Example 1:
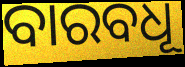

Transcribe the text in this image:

ବାରବଧୂ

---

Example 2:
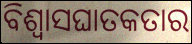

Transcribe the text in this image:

ବିଶ୍ୱାସଘାତକତାର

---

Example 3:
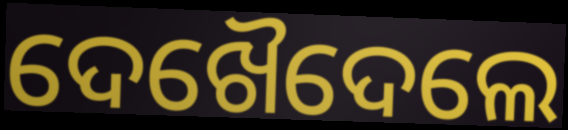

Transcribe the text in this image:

ଦେଖୈଦେଲେ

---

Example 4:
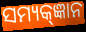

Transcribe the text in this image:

ସମ୍ୟକ୍‌ଜ୍ଞାନ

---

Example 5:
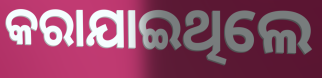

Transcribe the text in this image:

କରାଯାଇଥିଲେ